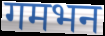
गमभन